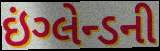
ઇંગ્લેન્ડની